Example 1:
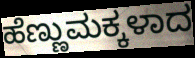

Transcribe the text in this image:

ಹೆಣ್ಣುಮಕ್ಕಳಾದ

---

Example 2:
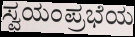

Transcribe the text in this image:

ಸ್ವಯಂಪ್ರಭೆಯ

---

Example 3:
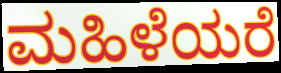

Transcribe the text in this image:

ಮಹಿಳೆಯರೆ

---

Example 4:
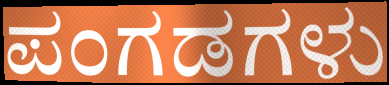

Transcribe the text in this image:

ಪಂಗಡಗಳು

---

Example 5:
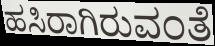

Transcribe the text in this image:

ಹಸಿರಾಗಿರುವಂತೆ